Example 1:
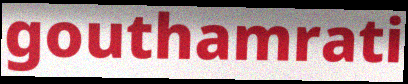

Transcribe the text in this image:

gouthamrati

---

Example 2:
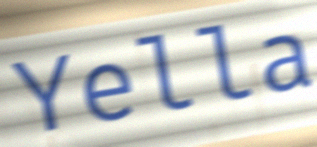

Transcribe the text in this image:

Yella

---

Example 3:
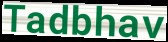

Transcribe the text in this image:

Tadbhav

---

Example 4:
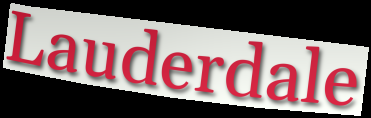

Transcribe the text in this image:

Lauderdale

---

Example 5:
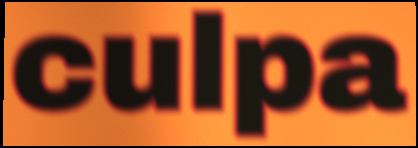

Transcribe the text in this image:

culpa